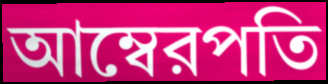
আম্বেরপতি